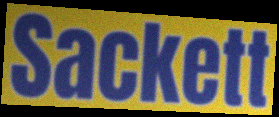
Sackett